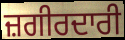
ਜ਼ਗੀਰਦਾਰੀ